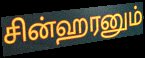
சின்ஹரனும்